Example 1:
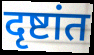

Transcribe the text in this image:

दृष्टांत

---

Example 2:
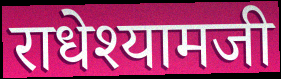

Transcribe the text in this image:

राधेश्यामजी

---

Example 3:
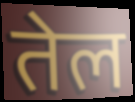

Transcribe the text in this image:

तेल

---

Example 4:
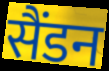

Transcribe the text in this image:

सैंडन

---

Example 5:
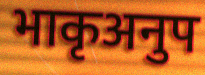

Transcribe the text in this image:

भाकृअनुप